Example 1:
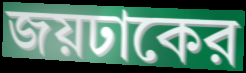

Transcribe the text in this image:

জয়ঢাকের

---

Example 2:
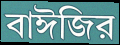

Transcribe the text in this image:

বাঈজির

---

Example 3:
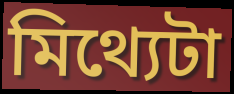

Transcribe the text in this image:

মিথ্যেটা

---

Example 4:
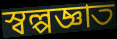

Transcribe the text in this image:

স্বল্পজ্ঞাত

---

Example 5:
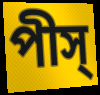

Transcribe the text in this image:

পীস্